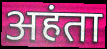
अहंता